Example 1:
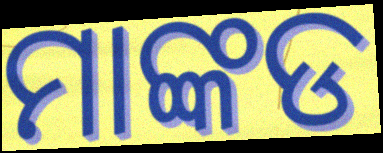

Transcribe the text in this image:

ମାଙ୍କଡ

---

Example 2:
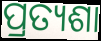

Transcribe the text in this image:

ପ୍ରତ୍ୟଶା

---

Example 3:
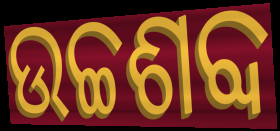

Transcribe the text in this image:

ଉଚ୍ଚଶବ୍ଦ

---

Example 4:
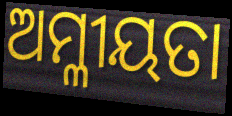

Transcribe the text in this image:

ଅମ୍ଳୀୟତା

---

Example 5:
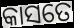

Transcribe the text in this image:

କାସତେ